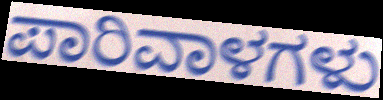
ಪಾರಿವಾಳಗಳು